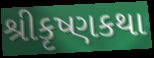
શ્રીકૃષ્ણકથા